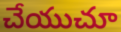
చేయుచూ